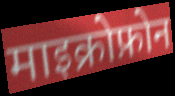
माइक्रोफ़ोन